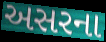
અસરના